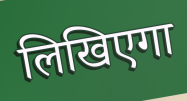
लिखिएगा